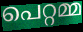
പെറ്റമ്മ